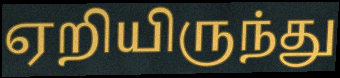
ஏறியிருந்து